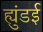
ह्युंडई